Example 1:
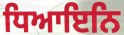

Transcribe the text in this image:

ਧਿਆਇਨਿ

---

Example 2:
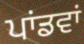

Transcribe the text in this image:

ਪਾਂਡਵਾਂ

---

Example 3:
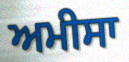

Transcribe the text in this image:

ਅਮੀਸਾ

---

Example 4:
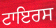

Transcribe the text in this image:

ਟਾਇਰਸ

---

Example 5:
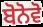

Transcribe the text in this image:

ਬੋਨੋਵੋ